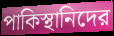
পাকিস্থানিদের